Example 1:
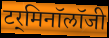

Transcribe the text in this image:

टर्मिनॉलॉजी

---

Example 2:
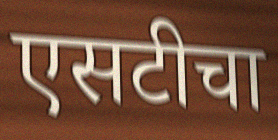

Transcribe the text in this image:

एसटीचा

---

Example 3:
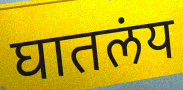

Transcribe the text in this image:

घातलंय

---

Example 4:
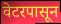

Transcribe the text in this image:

वेटरपासून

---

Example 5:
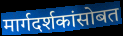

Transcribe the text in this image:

मार्गदर्शकांसोबत